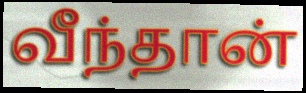
வீந்தான்